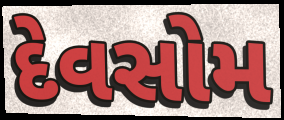
દેવસોમ